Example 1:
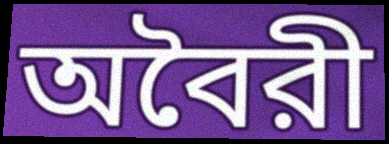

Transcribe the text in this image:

অবৈরী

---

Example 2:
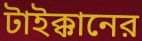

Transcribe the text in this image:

টাইক্কানের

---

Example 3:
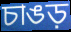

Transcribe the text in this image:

চাঙড়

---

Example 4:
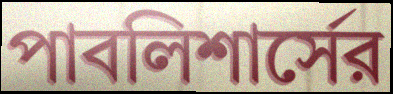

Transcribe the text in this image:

পাবলিশার্সের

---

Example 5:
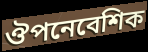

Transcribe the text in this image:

ঔপনেবেশিক